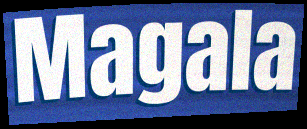
Magala